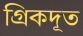
গ্রিকদূত